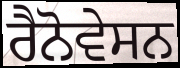
ਰੈਨੋਵੇਸਨ